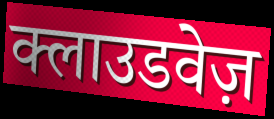
क्लाउडवेज़